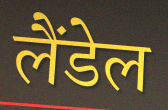
लैंडेल